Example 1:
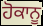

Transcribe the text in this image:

ਹੋਕਾਨੂ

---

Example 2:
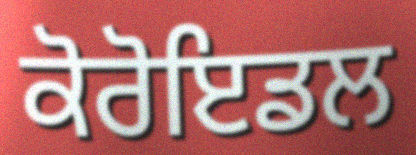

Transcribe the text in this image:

ਕੋਰੋਇਡਲ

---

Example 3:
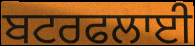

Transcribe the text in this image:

ਬਟਰਫਲਾਈ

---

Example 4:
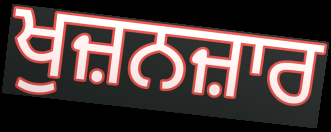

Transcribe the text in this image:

ਖੁਜ਼ਨਜ਼ਾਰ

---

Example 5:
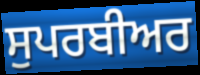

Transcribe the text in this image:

ਸੁਪਰਬੀਅਰ